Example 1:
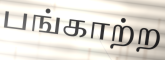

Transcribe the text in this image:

பங்காற்ற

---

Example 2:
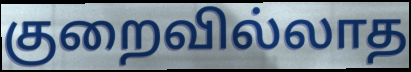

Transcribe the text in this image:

குறைவில்லாத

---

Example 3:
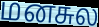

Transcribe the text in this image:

மனசுல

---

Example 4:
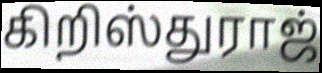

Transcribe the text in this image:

கிறிஸ்துராஜ்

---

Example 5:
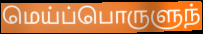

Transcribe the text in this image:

மெய்ப்பொருளுந்